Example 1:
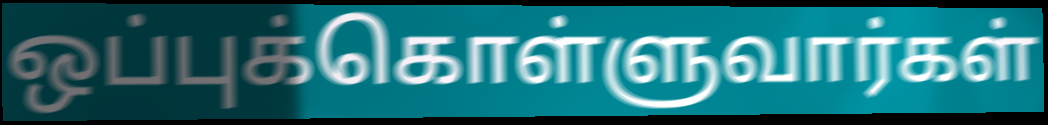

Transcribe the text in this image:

ஒப்புக்கொள்ளுவார்கள்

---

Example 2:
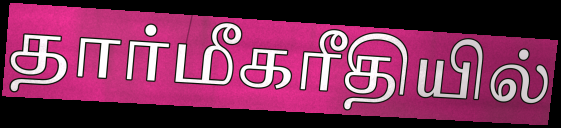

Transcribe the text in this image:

தார்மீகரீதியில்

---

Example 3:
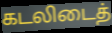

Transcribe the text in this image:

கடலிடைத்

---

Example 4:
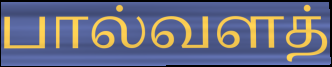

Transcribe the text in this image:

பால்வளத்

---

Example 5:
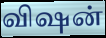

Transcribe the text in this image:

விஷன்